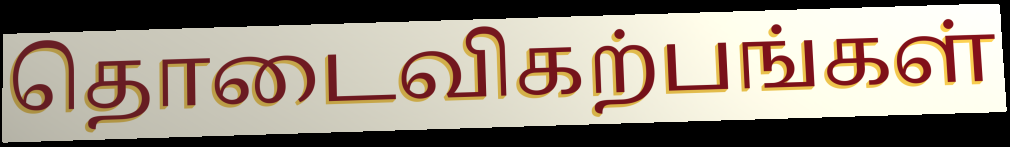
தொடைவிகற்பங்கள்